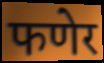
फणेर